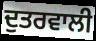
ਦੁਤਰਵਾਲੀ